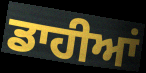
ਡਾਹੀਆਂ